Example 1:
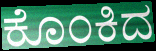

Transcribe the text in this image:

ಕೊಂಕಿದ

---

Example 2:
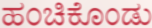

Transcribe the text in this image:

ಹಂಚಿಕೊಂಡು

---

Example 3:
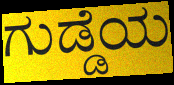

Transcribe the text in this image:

ಗುಡ್ಡೆಯ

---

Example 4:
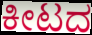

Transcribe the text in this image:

ಕೀಟದ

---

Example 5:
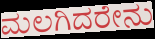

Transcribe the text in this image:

ಮಲಗಿದರೇನು